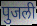
पुजली